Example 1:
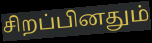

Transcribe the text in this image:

சிறப்பினதும்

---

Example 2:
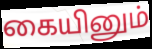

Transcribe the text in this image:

கையினும்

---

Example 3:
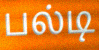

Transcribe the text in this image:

பல்டி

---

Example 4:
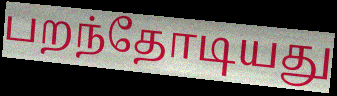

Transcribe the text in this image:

பறந்தோடியது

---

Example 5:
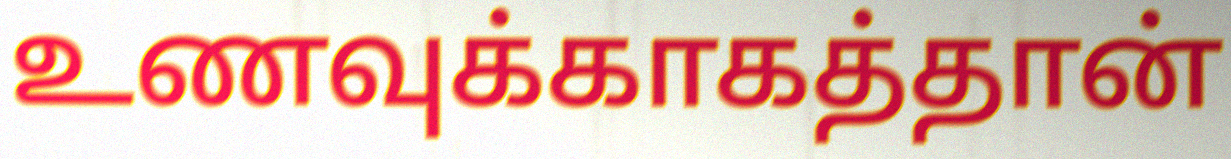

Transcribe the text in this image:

உணவுக்காகத்தான்